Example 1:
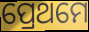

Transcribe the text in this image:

ପ୍ରେଥମେ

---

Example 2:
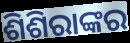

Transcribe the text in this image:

ଶିଶିରାଙ୍କର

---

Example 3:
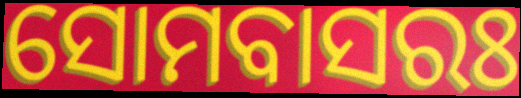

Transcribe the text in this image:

ସୋମବାସରଃ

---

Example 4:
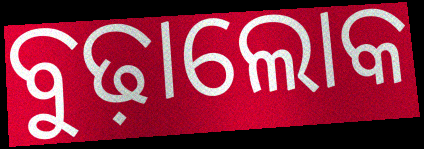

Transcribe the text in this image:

ବୁଢ଼ାଲୋକ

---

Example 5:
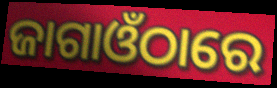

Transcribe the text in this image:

ଜାଗାଓଁଠାରେ